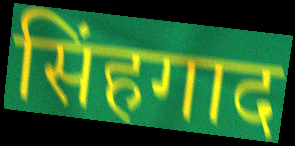
सिंहगाद